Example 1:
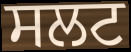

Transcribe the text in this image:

ਸਲਟ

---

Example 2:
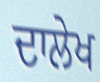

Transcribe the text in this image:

ਦਾਲੇਖ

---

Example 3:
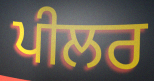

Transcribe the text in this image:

ਪੀਲਰ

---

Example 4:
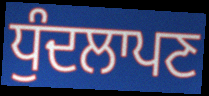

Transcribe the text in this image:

ਧੁੰਦਲਾਪਣ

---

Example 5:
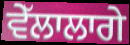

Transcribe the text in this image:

ਵੇੱਲਾਲਾਗੇ